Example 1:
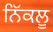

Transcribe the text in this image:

ਨਿੱਕਲੂ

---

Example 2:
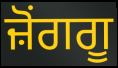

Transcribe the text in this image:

ਜ਼ੋਂਗਗੂ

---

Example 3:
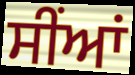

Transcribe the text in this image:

ਸੀਂਆਂ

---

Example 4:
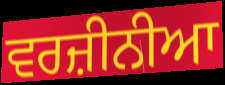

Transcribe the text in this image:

ਵਰਜ਼ੀਨੀਆ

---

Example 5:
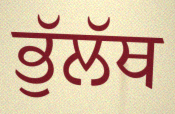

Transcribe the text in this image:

ਭੁੱਲੱਥ